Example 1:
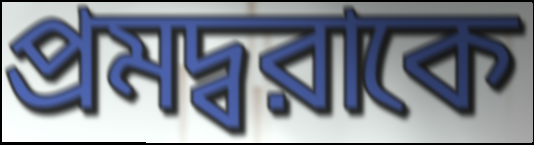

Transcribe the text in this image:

প্রমদ্বরাকে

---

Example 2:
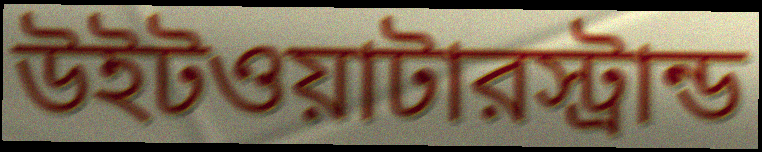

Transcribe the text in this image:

উইটওয়াটারস্ট্রান্ড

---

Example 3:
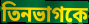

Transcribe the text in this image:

তিনভাগকে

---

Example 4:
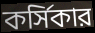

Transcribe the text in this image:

কর্সিকার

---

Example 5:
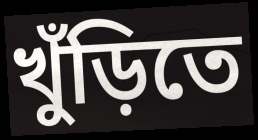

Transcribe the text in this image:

খুঁড়িতে